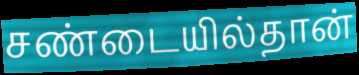
சண்டையில்தான்